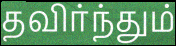
தவிர்ந்தும்